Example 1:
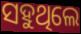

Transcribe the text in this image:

ସହୁଥିଲେ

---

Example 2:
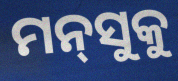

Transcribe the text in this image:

ମନ୍‌ସୁକୁ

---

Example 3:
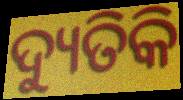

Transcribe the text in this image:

ଦ୍ୟୁତିକି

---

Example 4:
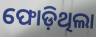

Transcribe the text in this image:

ଫୋଡ଼ିଥିଲା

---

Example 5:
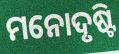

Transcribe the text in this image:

ମନୋଦୃଷ୍ଟି